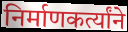
निर्माणकर्त्यांने